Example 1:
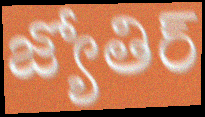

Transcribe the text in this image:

జ్యోతిర్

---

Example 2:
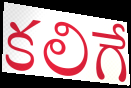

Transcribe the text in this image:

కలిగే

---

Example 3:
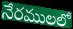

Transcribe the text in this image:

నేరములలో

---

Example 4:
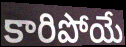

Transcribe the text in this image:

కారిపోయే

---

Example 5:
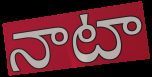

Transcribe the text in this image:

నాటా